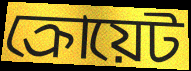
ক্রোয়েট